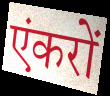
एंकरों